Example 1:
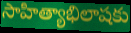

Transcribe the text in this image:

సాహిత్యాభిలాషకు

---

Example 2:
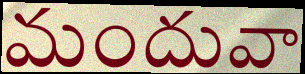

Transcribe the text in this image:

మందువా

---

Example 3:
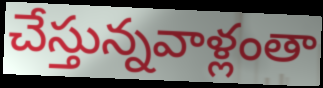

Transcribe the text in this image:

చేస్తున్నవాళ్లంతా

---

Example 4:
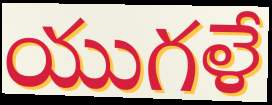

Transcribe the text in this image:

యుగళే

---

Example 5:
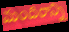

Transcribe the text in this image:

మందిరాన్ని